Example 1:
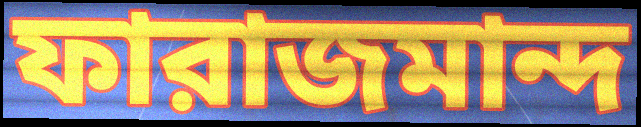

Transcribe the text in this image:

ফারাজমান্দ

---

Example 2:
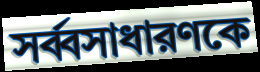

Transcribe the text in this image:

সর্ব্বসাধারণকে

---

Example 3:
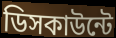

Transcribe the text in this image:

ডিসকাউন্টে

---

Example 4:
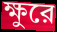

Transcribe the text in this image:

ক্ষুরে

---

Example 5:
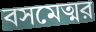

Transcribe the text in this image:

বসমেত্মর